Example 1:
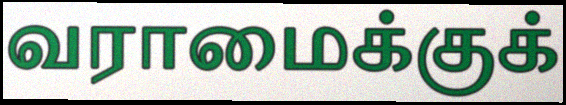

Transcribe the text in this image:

வராமைக்குக்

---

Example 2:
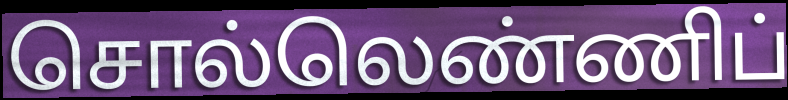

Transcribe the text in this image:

சொல்லெண்ணிப்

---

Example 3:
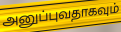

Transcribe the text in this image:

அனுப்புவதாகவும்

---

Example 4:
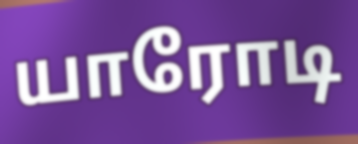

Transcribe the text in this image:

யாரோடி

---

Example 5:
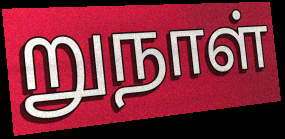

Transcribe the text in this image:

றுநாள்